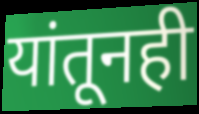
यांतूनही